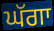
ਘੱਗਾ